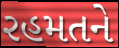
રહમતને